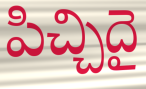
పిచ్చిదై